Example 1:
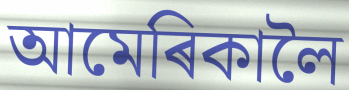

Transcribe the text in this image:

আমেৰিকালৈ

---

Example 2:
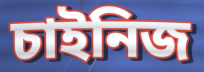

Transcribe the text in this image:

চাইনিজ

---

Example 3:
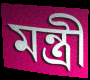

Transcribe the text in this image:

মন্ত্ৰী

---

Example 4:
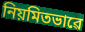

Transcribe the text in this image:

নিয়মিতভাৱে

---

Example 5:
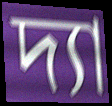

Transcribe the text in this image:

দ্যা